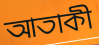
আতাকী